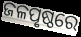
ଜଳପୃଷ୍ଠରେ